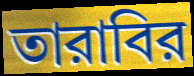
তারাবির